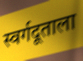
स्वर्गदूताला